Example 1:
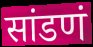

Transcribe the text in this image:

सांडणं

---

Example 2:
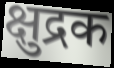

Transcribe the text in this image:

क्षुद्रक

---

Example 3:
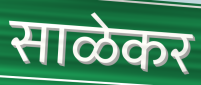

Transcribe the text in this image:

साळेकर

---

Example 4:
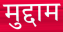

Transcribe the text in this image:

मुद्दाम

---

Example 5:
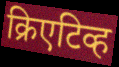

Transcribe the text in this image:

क्रिएटिव्ह